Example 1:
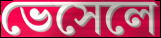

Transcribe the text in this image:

ভেসেলে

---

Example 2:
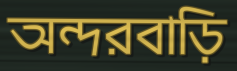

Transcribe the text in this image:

অন্দরবাড়ি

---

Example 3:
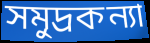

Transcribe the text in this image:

সমুদ্রকন্যা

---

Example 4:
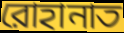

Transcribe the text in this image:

রোহানাত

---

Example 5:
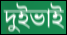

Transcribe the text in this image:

দুইভাই